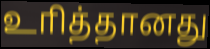
உரித்தானது